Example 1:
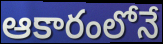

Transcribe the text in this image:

ఆకారంలోనే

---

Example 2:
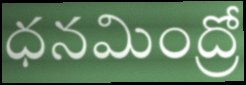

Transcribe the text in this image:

ధనమింద్రో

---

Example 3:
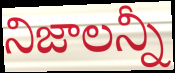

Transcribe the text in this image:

నిజాలన్నీ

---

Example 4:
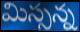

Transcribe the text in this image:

మిస్సన్న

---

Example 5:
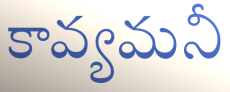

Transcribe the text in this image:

కావ్యమనీ